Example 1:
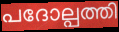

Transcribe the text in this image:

പദോല്പത്തി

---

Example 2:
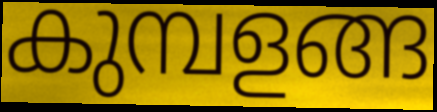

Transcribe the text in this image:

കുമ്പളങ്ങ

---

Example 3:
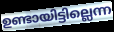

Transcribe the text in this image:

ഉണ്ടായിട്ടില്ലെന്ന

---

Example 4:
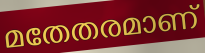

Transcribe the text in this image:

മതേതരമാണ്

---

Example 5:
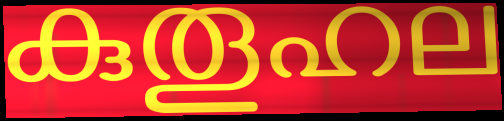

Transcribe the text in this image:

കുതൂഹല